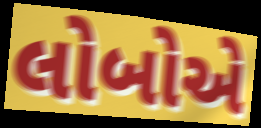
લોબોએ